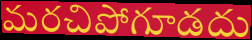
మరచిపోగూడదు